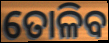
ତୋଳିବ